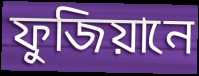
ফুজিয়ানে